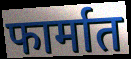
फार्मात